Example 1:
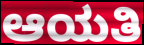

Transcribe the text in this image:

ಆಯತಿ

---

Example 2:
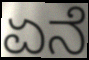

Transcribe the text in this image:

ಏನೆ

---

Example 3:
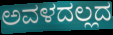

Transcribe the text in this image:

ಅವಳದಲ್ಲದ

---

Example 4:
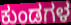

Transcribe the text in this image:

ಕುಂಡಗಳ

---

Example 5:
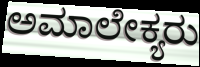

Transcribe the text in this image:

ಅಮಾಲೇಕ್ಯರು